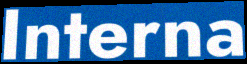
Interna